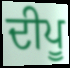
ਦੀਪੂ